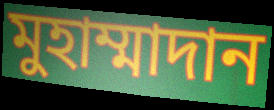
মুহাম্মাদান